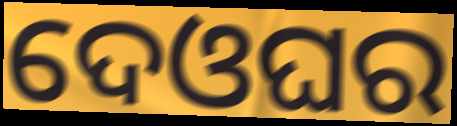
ଦେଓଘର